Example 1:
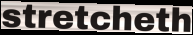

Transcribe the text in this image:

stretcheth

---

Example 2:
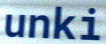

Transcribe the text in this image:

unki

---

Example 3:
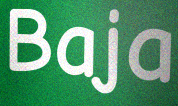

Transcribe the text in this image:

Baja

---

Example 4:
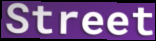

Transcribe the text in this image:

Street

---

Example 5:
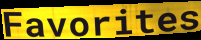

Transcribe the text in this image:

Favorites